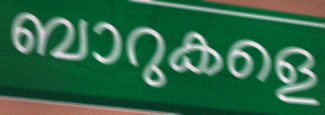
ബാറുകളെ